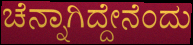
ಚೆನ್ನಾಗಿದ್ದೇನೆಂದು